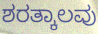
ಶರತ್ಕಾಲವು